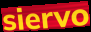
siervo